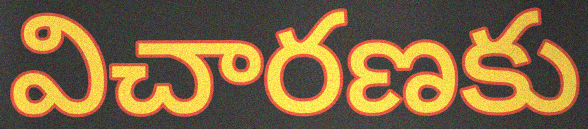
విచారణకు